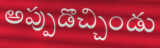
అప్పుడొచ్చిండు